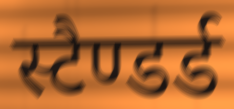
स्टैण्डर्ड